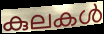
കുലകൾ